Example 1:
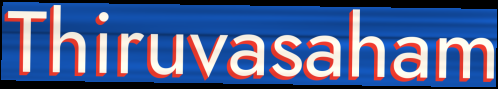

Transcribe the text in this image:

Thiruvasaham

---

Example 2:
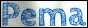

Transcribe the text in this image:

Pema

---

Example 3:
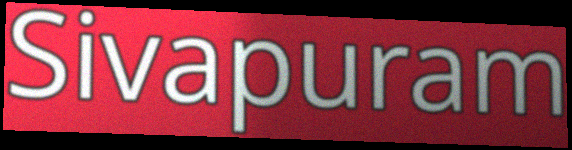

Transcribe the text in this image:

Sivapuram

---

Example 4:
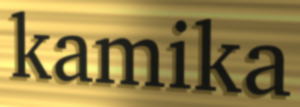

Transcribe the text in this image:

kamika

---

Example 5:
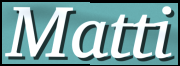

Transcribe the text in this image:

Matti